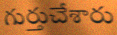
గుర్తుచేశారు